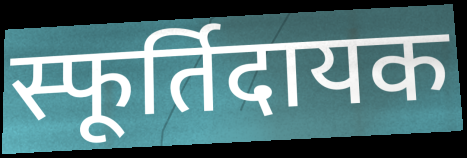
स्फूर्तिदायक